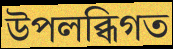
উপলব্ধিগত